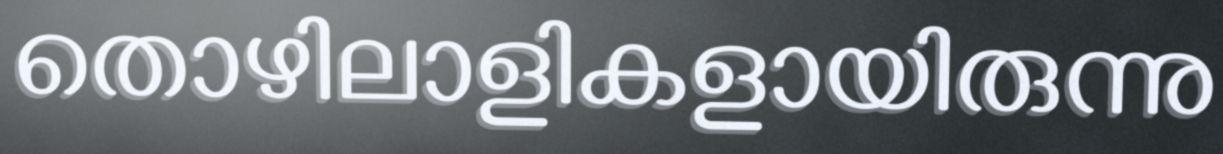
തൊഴിലാളികളായിരുന്നു